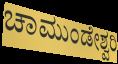
ಚಾಮುಂಡೇಶ್ವರಿ